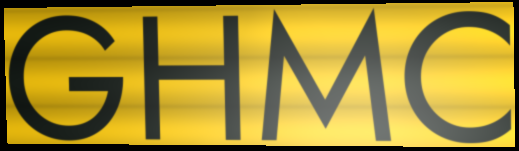
GHMC